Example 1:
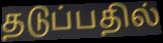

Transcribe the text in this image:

தடுப்பதில்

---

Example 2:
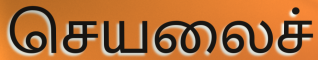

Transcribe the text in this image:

செயலைச்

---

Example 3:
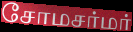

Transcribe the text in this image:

சோமசர்மர்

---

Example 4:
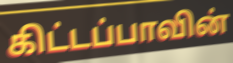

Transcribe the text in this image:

கிட்டப்பாவின்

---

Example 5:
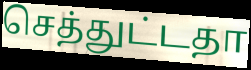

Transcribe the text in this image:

செத்துட்டதா